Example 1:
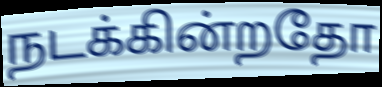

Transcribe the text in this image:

நடக்கின்றதோ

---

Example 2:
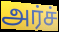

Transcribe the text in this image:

அர்ச்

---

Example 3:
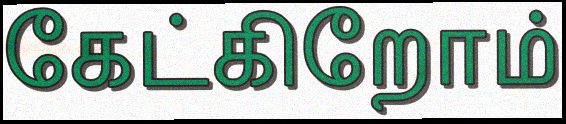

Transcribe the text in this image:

கேட்கிறோம்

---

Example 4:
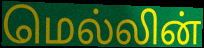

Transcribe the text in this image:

மெல்லின்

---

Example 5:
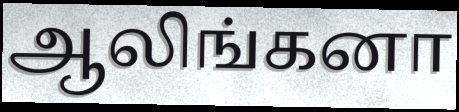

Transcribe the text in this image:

ஆலிங்கனா